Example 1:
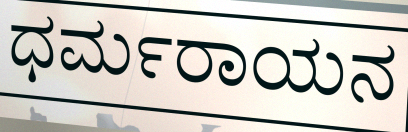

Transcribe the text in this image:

ಧರ್ಮರಾಯನ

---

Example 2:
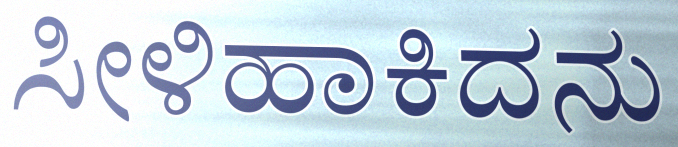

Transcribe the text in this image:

ಸೀಳಿಹಾಕಿದನು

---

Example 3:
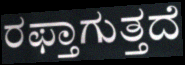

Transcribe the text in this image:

ರಫ್ತಾಗುತ್ತದೆ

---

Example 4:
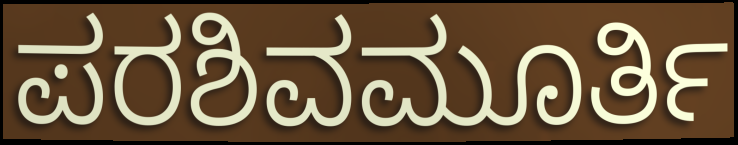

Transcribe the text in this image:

ಪರಶಿವಮೂರ್ತಿ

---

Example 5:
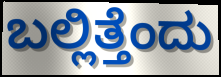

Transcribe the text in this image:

ಬಲ್ಲಿತ್ತೆಂದು